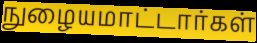
நுழையமாட்டார்கள்